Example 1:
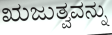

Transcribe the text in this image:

ಋಜುತ್ವವನ್ನು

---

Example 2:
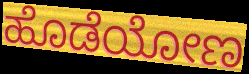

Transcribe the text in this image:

ಹೊಡೆಯೋಣ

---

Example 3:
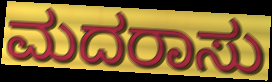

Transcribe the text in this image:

ಮದರಾಸು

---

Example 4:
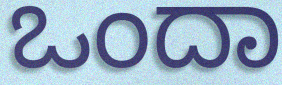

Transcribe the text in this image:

ಒಂದಾ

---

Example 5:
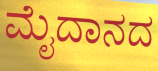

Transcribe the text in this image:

ಮೈದಾನದ